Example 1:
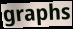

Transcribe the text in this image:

graphs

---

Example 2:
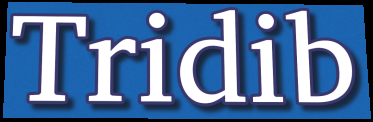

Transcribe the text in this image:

Tridib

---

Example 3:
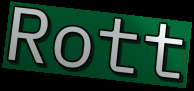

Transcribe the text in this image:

Rott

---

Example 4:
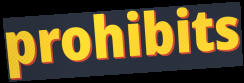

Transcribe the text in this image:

prohibits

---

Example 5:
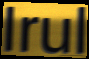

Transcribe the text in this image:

Irul